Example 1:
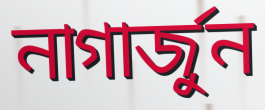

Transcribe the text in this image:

নাগাৰ্জুন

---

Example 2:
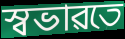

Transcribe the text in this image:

স্বভাৱতে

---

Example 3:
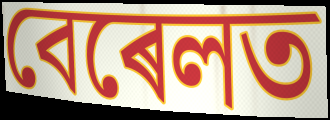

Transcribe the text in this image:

বেৰেলত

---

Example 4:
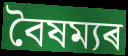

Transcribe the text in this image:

বৈষম্যৰ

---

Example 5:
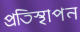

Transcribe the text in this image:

প্ৰতিস্থাপন